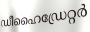
ഡീഹൈഡ്രേറ്റർ